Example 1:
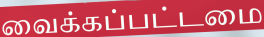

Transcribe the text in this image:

வைக்கப்பட்டமை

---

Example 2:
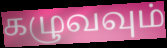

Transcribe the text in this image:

கழுவவும்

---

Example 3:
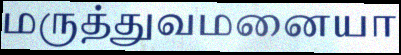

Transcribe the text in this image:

மருத்துவமனையா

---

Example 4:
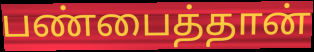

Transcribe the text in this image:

பண்பைத்தான்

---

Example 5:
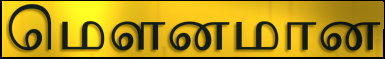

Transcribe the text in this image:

மௌனமான